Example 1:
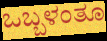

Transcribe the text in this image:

ಒಬ್ಬಳಂತೂ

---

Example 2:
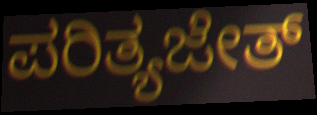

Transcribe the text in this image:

ಪರಿತ್ಯಜೇತ್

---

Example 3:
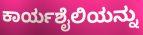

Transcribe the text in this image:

ಕಾರ್ಯಶೈಲಿಯನ್ನು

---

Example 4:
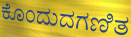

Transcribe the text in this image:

ಕೊಂದುದಗಣಿತ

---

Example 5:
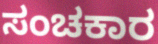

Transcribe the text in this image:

ಸಂಚಕಾರ